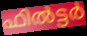
ഫിൽട്ടർ